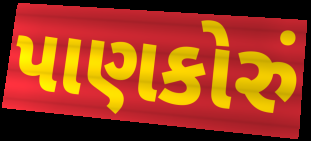
પાણકોરું